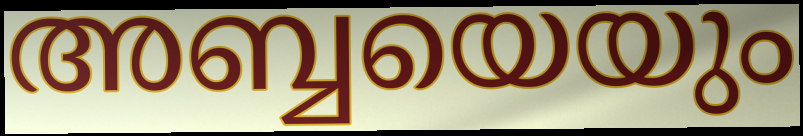
അബ്ബയെയും